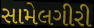
સામેલગીરી